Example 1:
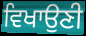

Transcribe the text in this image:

ਵਿਖਾਉਣੀ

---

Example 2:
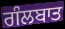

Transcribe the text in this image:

ਗੰਲਬਾਤ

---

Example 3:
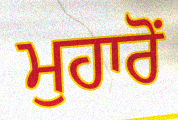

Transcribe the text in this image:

ਮੁਹਾਰੋਂ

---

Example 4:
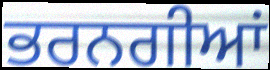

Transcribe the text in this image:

ਭਰਨਗੀਆਂ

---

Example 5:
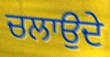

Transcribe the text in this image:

ਚਲਾਉਦੇ